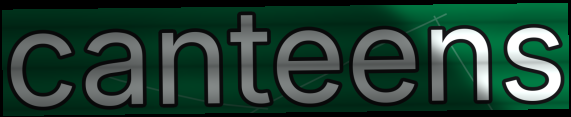
canteens